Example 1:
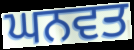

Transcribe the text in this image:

ਘਨਵਤ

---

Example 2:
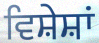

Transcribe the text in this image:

ਵਿਸ਼ੇਸ਼ਾਂ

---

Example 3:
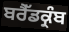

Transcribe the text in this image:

ਬਰੈੱਡਕ੍ਰੰਬ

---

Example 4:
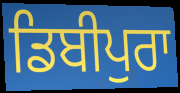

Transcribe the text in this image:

ਡਿਬੀਪੁਰਾ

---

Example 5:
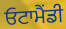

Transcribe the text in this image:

ਓਟਾਮੈਂਡੀ